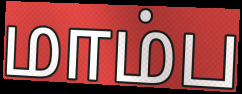
மாம்ப